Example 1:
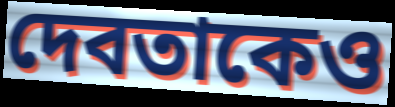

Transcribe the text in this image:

দেবতাকেও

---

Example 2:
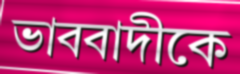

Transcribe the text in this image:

ভাববাদীকে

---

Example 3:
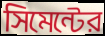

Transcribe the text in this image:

সিমেন্টের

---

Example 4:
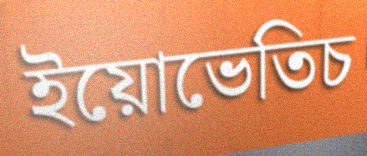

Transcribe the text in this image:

ইয়োভেতিচ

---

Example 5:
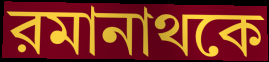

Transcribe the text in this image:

রমানাথকে